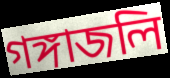
গঙ্গাজলি